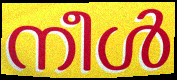
നീൾ